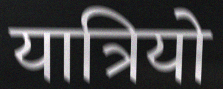
यात्रियो